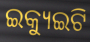
ଇକ୍ୟୁଇଟି